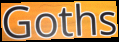
Goths